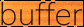
buffer